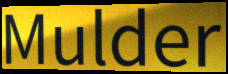
Mulder